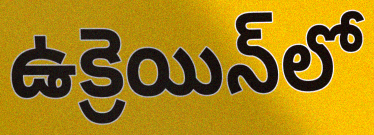
ఉక్రెయిన్‌లో